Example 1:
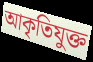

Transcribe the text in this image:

আকৃতিযুক্ত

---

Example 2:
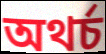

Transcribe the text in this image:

অথৰ্চ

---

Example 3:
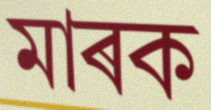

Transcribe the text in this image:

মাৰক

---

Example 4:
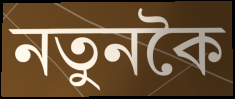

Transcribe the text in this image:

নতুনকৈ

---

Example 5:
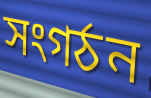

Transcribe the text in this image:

সংগঠন